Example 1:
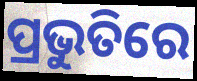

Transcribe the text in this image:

ପ୍ରଭୁତିରେ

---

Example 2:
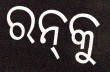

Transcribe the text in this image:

ରନ୍‌କୁ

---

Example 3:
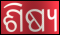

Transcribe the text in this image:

ଶିଷ୍ଯ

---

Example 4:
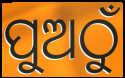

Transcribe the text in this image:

ପୁଅଠୁଁ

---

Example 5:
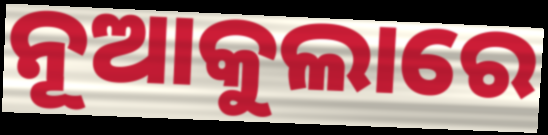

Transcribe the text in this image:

ନୂଆକୁଲାରେ